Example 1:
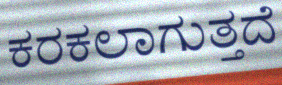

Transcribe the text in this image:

ಕರಕಲಾಗುತ್ತದೆ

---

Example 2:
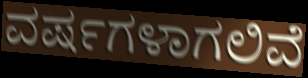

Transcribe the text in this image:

ವರ್ಷಗಳಾಗಲಿವೆ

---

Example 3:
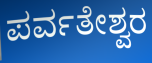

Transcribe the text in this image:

ಪರ್ವತೇಶ್ವರ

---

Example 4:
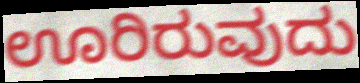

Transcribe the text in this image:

ಊರಿರುವುದು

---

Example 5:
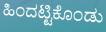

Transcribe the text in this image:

ಹಿಂದಟ್ಟಿಕೊಂಡು